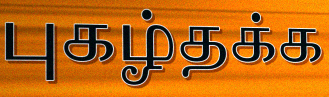
புகழ்தக்க